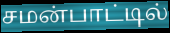
சமன்பாட்டில்